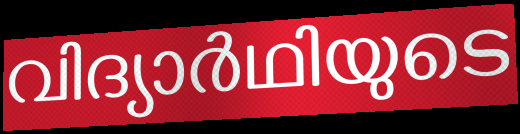
വിദ്യാർഥിയുടെ